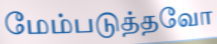
மேம்படுத்தவோ